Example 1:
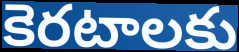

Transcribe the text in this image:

కెరటాలకు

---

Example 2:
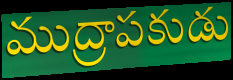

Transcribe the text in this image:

ముద్రాపకుడు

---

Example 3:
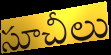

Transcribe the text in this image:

సూచీలు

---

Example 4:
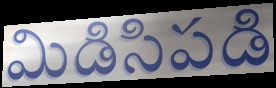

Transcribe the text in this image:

మిడిసిపడి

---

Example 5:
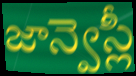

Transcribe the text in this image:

జాన్వెస్లీ